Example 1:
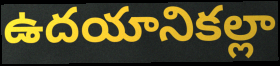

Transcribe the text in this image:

ఉదయానికల్లా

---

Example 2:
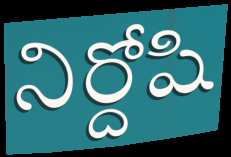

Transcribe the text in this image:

నిర్దోషి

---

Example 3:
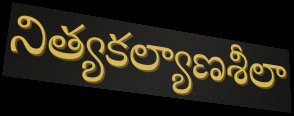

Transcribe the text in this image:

నిత్యకల్యాణశీలా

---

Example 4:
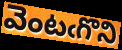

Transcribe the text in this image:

వెంటఁగొని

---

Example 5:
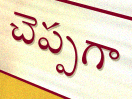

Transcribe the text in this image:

చెప్పగా